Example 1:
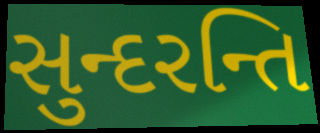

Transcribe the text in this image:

સુન્દરન્તિ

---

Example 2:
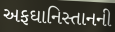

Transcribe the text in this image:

અફઘાનિસ્તાનની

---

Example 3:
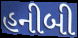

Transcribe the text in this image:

હનીબી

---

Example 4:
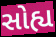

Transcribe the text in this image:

સોહ્ય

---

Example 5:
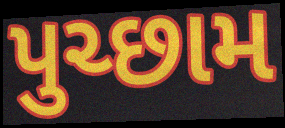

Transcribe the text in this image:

પુચ્છામ